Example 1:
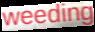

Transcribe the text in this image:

weeding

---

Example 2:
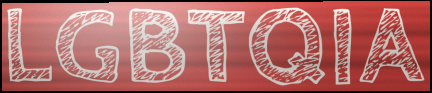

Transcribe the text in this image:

LGBTQIA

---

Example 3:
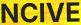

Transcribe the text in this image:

NCIVE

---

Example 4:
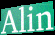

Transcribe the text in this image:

Alin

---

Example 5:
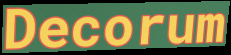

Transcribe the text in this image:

Decorum